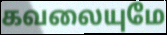
கவலையுமே